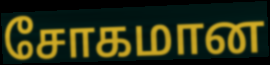
சோகமான